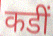
कडीं